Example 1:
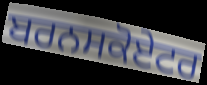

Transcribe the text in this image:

ਬਰਨਸਕੋਏਟਰ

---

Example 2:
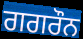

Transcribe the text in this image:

ਗਗਰੌਨ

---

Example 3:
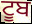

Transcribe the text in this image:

ਟੂਬ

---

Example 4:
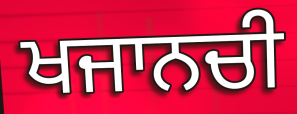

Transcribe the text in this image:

ਖਜਾਨਚੀ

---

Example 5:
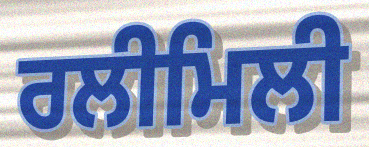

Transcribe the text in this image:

ਰਲੀਮਿਲੀ